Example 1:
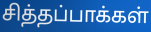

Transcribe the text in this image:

சித்தப்பாக்கள்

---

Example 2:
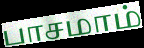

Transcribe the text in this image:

பாசமாம்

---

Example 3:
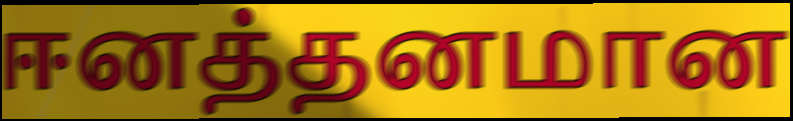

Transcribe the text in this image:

ஈனத்தனமான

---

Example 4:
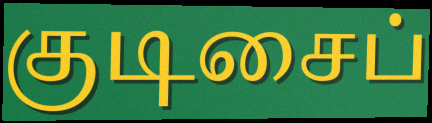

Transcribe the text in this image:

குடிசைப்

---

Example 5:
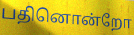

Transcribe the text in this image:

பதினொன்றோ